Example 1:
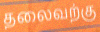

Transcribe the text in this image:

தலைவற்கு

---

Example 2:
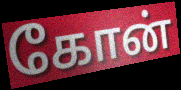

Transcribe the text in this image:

கோன்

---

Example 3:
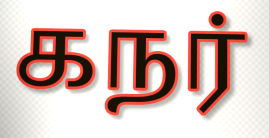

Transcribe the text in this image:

கநர்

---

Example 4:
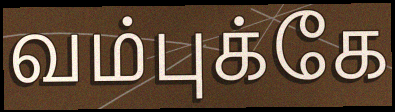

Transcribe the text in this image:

வம்புக்கே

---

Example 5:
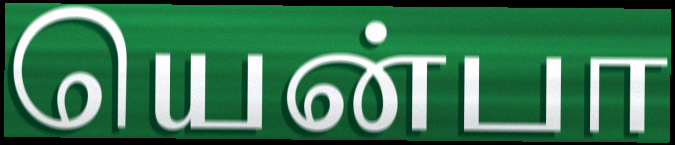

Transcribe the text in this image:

யென்பா